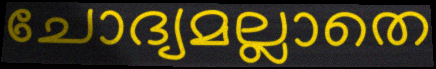
ചോദ്യമല്ലാതെ